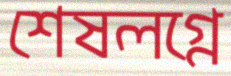
শেষলগ্নে